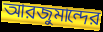
আরজুমান্দের